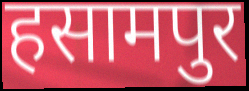
हसामपुर